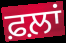
ਫ਼ਲ਼ਾਂ